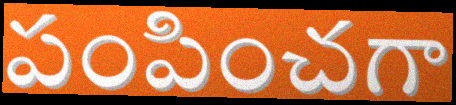
పంపించగా